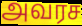
அவரச